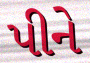
પીને